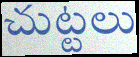
చుట్టలు